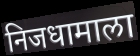
निजधामाला